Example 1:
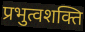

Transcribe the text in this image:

प्रभुत्वशक्ति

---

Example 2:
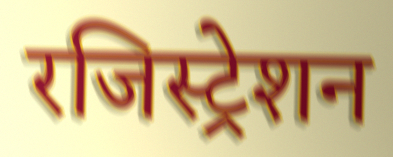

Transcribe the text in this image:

रजिस्ट्रेशन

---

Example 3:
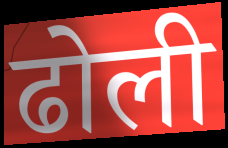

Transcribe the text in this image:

ढोली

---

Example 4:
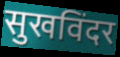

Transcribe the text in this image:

सुखविंदर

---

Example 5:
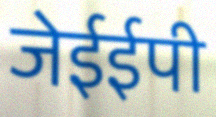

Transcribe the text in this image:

जेईईपी